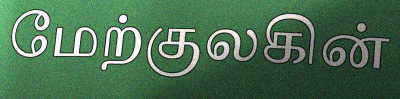
மேற்குலகின்